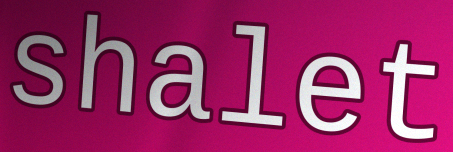
shalet